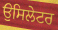
ਉਸਿਲੇਟਰ